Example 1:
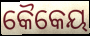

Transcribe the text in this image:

କୈକେୟ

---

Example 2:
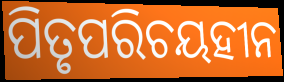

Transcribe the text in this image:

ପିତୃପରିଚୟହୀନ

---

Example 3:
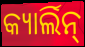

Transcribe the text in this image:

କ୍ୟାର୍ଲିନ୍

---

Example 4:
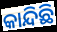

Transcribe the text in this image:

କାନ୍ଦିଛି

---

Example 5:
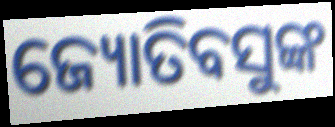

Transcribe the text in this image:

ଜ୍ୟୋତିବସୁଙ୍କ